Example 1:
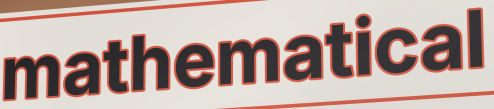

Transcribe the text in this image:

mathematical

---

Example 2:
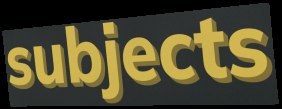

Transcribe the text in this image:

subjects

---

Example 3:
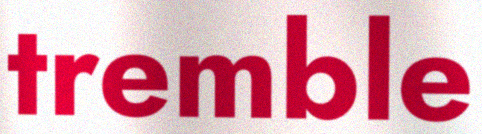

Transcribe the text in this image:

tremble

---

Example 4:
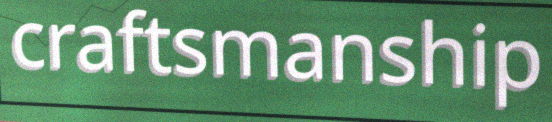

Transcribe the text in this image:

craftsmanship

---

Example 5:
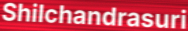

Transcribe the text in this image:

Shilchandrasuri